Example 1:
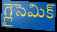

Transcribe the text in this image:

గ్లైసెమిక్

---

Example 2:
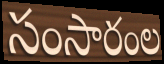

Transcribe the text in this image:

సంసారంల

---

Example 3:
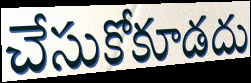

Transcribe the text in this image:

చేసుకోకూడదు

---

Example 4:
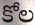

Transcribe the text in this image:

కోల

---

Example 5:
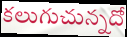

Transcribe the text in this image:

కలుగుచున్నదో